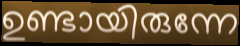
ഉണ്ടായിരുന്നേ